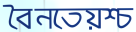
বৈনতেয়শ্চ